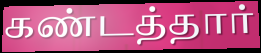
கண்டத்தார்